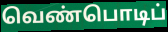
வெண்பொடிப்